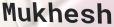
Mukhesh